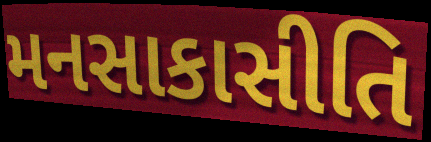
મનસાકાસીતિ